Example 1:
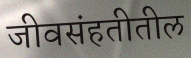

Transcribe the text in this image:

जीवसंहतीतील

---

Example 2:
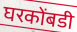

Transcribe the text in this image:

घरकोंबडी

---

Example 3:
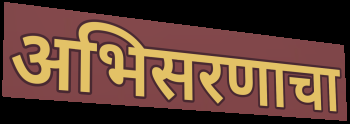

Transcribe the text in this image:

अभिसरणाचा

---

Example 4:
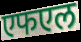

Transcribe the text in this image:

एफएल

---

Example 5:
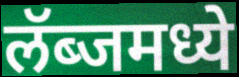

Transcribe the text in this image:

लॅब्जमध्ये